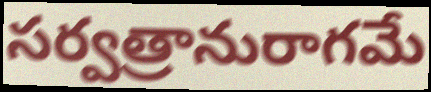
సర్వత్రానురాగమే